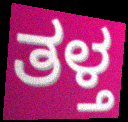
ತಳ್ತ